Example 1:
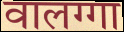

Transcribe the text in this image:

वालग्गा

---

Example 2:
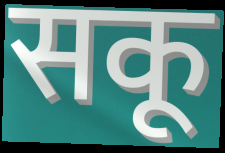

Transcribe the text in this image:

सकू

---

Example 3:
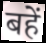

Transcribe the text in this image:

बहें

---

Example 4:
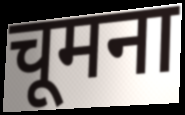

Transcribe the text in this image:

चूमना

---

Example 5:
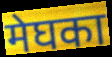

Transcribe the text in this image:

मेघका